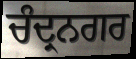
ਚੰਦ੍ਰਨਗਰ